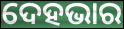
ଦେହଭାର